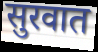
सुरवात